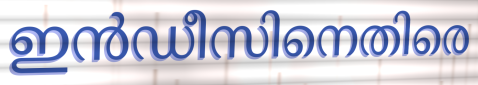
ഇൻഡീസിനെതിരെ